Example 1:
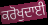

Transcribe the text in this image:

ਕਰੋਖੁਦਾਈ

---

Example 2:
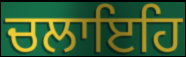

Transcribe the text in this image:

ਚਲਾਇਹਿ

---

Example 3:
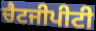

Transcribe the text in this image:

ਚੈਟਜੀਪੀਟੀ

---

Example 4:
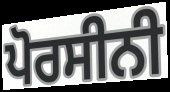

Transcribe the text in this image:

ਪੋਰਸੀਨੀ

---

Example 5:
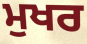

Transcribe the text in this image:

ਮੁਖਰ